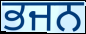
ਭਜਨ